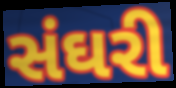
સંઘરી